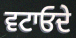
ਵਟਾਓਦੇ